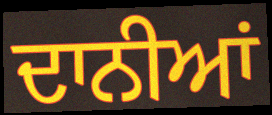
ਦਾਨੀਆਂ